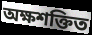
অক্ষশক্তিত